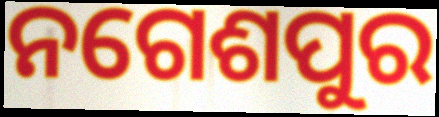
ନଗେଶପୁର